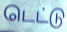
டெட்டு